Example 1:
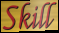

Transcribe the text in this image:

Skill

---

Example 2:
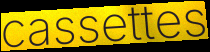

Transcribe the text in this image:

cassettes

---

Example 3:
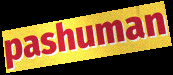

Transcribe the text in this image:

pashuman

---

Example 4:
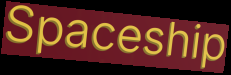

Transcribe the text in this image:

Spaceship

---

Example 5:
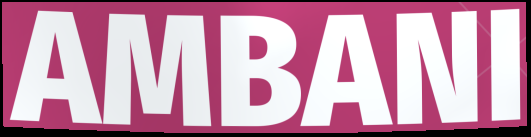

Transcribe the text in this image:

AMBANI